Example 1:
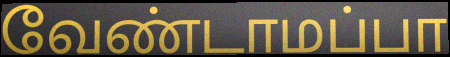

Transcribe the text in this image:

வேண்டாமப்பா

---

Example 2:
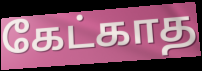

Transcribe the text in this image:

கேட்காத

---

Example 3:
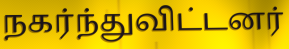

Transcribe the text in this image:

நகர்ந்துவிட்டனர்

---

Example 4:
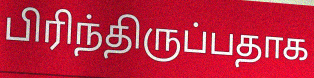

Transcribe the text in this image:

பிரிந்திருப்பதாக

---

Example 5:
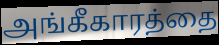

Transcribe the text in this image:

அங்கீகாரத்தை